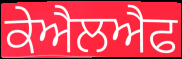
ਕੇਐਲਐਫ